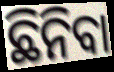
ଛିନିବା